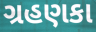
ગ્રહણકા